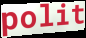
polit